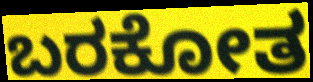
ಬರಕೋತ